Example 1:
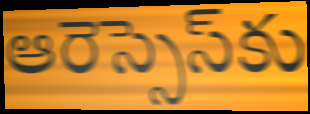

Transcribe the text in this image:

ఆరెస్సెస్‌కు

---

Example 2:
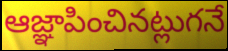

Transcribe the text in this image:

ఆజ్ఞాపించినట్లుగనే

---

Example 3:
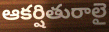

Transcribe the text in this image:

ఆకర్షితురాలై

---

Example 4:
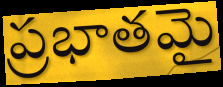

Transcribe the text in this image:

ప్రభాతమై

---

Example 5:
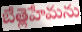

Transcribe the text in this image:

బేత్లెహేమను